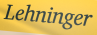
Lehninger